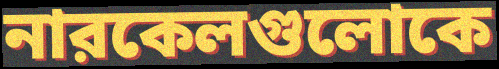
নারকেলগুলোকে